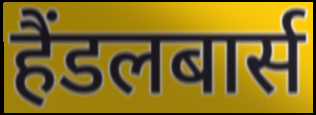
हैंडलबार्स